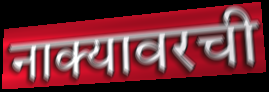
नाक्यावरची